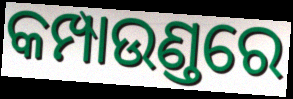
କମ୍ପାଉଣ୍ଡରେ